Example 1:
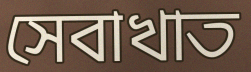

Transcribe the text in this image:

সেবাখাত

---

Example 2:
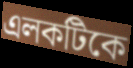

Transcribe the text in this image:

এলকটিকে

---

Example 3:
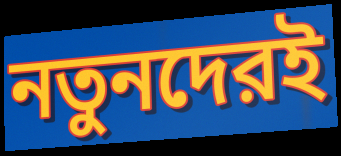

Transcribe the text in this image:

নতুনদেরই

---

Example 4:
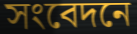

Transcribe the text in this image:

সংবেদনে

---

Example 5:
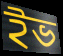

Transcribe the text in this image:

ইভ